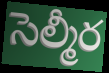
సెల్మీర